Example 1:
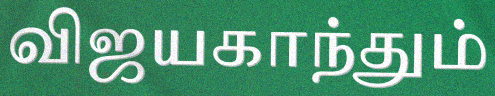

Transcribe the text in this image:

விஜயகாந்தும்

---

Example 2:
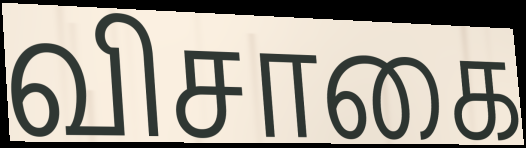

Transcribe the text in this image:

விசாகை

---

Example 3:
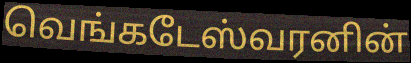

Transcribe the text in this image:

வெங்கடேஸ்வரனின்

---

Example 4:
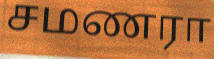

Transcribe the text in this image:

சமணரா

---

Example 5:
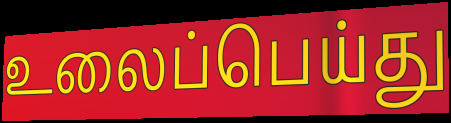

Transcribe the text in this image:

உலைப்பெய்து